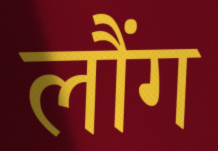
लौंग